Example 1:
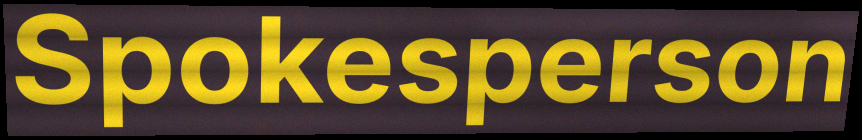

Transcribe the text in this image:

Spokesperson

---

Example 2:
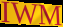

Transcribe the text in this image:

IWM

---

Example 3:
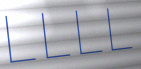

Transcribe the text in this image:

LLLL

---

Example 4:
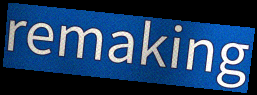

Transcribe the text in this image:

remaking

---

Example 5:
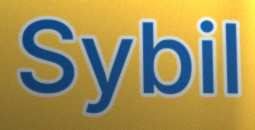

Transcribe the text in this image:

Sybil